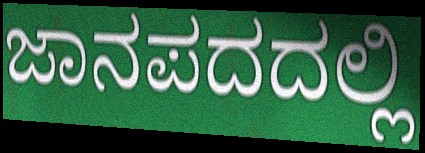
ಜಾನಪದದಲ್ಲಿ